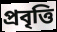
প্ৰবৃত্তি